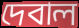
দেবাল